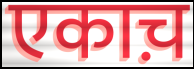
एकाच़